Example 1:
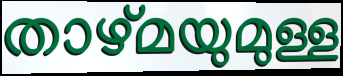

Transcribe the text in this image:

താഴ്മയുമുള്ള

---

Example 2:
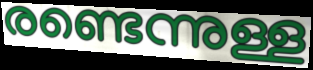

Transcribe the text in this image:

രണ്ടെന്നുള്ള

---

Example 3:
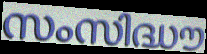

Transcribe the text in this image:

സംസിദ്ധൗ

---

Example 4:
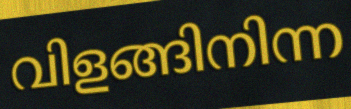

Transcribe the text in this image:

വിളങ്ങിനിന്ന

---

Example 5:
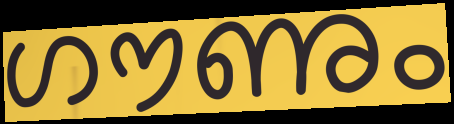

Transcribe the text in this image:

ഗൗണും